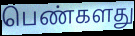
பெண்களது